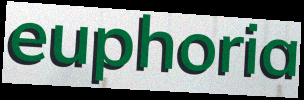
euphoria